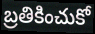
బ్రతికించుకో